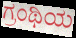
ಗ್ರಂಥಿಯ